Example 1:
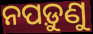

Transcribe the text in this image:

ନପଡ଼ୁଣୁ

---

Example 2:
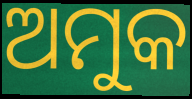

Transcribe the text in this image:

ଅମୁକ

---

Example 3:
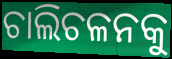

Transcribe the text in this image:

ଚାଲିଚଳନକୁ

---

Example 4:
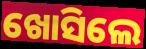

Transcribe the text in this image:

ଖୋସିଲେ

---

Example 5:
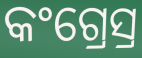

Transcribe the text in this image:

କଂଗ୍ରେସ୍ର